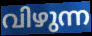
വിഴുന്ന